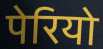
पेरियो